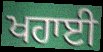
ਖਹਾਈ